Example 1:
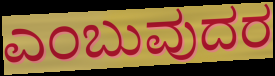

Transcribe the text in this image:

ಎಂಬುವುದರ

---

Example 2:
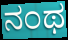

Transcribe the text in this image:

ನಂಥ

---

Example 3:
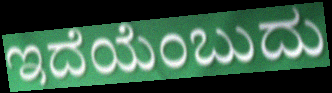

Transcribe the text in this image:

ಇದೆಯೆಂಬುದು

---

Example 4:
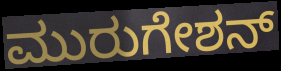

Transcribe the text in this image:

ಮುರುಗೇಶನ್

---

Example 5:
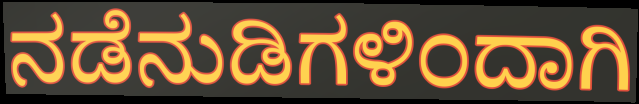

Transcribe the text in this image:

ನಡೆನುಡಿಗಳಿಂದಾಗಿ